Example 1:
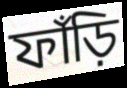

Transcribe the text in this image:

ফাঁড়ি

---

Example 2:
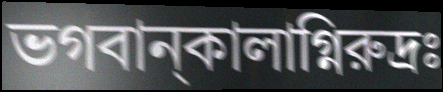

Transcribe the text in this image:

ভগবান্কালাগ্নিরুদ্রঃ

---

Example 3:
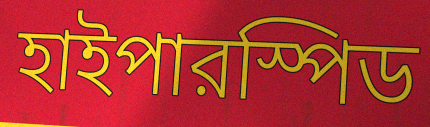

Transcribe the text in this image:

হাইপারস্পিড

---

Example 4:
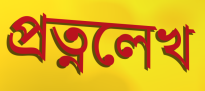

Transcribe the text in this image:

প্রত্নলেখ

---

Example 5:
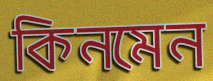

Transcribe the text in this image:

কিনমেন